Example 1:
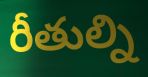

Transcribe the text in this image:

రీతుల్ని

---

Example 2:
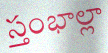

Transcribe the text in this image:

స్తంభాల్లా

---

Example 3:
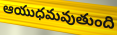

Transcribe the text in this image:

ఆయుధమవుతుంది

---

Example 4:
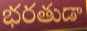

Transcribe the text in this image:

భరతుడా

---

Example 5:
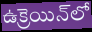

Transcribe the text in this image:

ఉక్రెయిన్‌లో